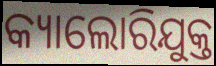
କ୍ୟାଲୋରିଯୁକ୍ତ